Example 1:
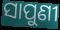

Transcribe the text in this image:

ସାପୁଣୀ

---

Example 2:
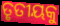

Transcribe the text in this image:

ତୃତୀୟକୁ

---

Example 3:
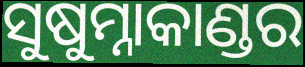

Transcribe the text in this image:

ସୁଷୁମ୍ନାକାଣ୍ଡର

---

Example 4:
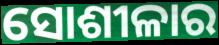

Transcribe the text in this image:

ସୋଶୀଳାର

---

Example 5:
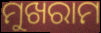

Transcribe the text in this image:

ମୁଖରାମ